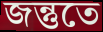
জন্তুতে